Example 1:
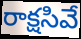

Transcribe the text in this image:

రాక్షసివే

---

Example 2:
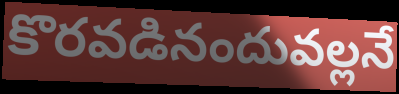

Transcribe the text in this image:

కొరవడినందువల్లనే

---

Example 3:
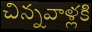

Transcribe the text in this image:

చిన్నవాళ్లకి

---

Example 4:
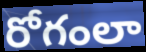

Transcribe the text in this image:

రోగంలా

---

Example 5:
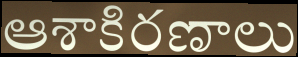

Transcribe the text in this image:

ఆశాకిరణాలు